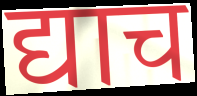
द्याच